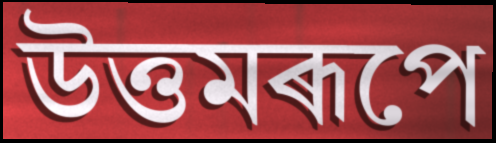
উত্তমৰূপে